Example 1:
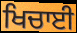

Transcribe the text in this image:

ਖਿਚਾਈ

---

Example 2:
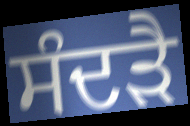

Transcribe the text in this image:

ਸੰਦੜੈ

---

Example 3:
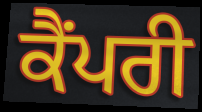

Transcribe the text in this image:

ਕੈਂਪਰੀ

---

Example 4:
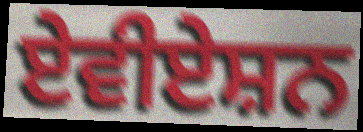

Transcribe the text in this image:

ਏਵੀਏਸ਼ਨ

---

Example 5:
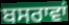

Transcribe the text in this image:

ਬਸਰਾਵਾਂ